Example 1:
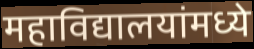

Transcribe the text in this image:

महाविद्यालयांमध्ये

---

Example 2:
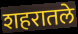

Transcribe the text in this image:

शहरातले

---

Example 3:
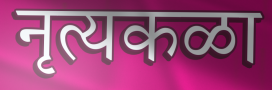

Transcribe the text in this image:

नृत्यकळा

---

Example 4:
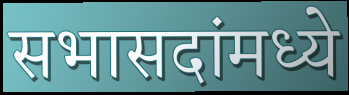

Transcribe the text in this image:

सभासदांमध्ये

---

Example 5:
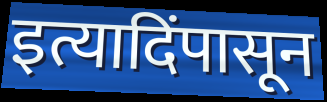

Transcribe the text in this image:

इत्यादिंपासून